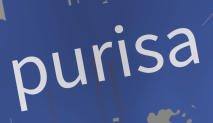
purisa